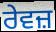
ਰੇਵਜ਼